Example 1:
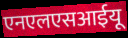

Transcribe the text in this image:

एनएलएसआईयू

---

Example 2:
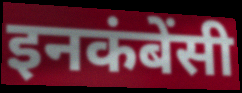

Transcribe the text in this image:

इनकंबेंसी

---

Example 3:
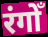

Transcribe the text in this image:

रंगोँ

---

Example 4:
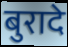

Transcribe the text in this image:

बुरादे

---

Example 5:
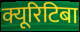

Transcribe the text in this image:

क्यूरिटिबा